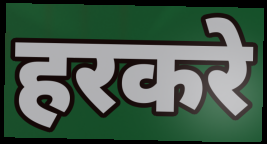
हरकरे